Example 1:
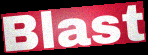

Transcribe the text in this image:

Blast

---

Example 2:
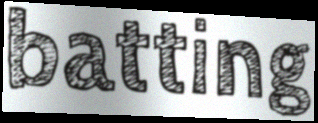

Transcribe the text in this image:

batting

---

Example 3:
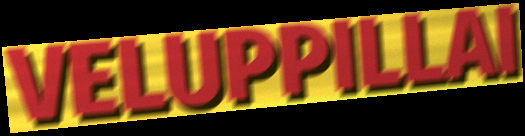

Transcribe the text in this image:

VELUPPILLAI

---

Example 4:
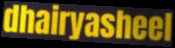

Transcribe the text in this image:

dhairyasheel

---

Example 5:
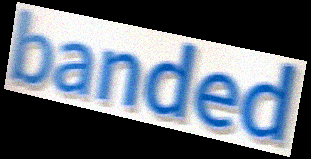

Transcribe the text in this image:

banded